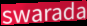
swarada